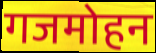
गजमोहन